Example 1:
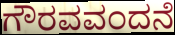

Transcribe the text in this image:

ಗೌರವವಂದನೆ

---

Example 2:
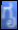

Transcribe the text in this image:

ಗೃ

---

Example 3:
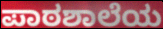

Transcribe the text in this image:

ಪಾಠಶಾಲೆಯ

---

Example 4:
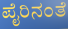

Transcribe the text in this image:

ಪೈರಿನಂತೆ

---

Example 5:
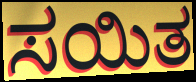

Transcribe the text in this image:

ಸಯಿತ